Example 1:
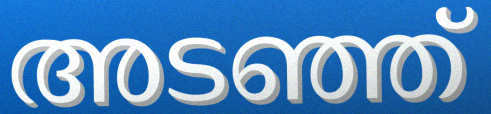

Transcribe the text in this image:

അടഞ്ഞ്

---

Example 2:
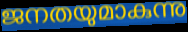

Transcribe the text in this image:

ജനതയുമാകുന്നു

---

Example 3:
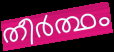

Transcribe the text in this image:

തീർത്ഥം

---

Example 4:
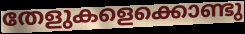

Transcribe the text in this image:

തേളുകളെക്കൊണ്ടു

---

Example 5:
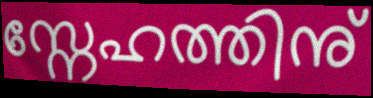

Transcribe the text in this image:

സ്നേഹത്തിനു്